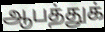
ஆபத்துக்